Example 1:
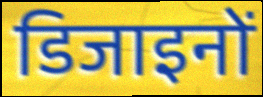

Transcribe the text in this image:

डिजाइनों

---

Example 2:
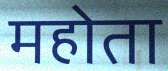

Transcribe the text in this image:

महोता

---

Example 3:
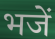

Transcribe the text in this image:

भजें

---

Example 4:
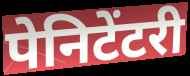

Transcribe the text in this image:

पेनिटेंटरी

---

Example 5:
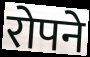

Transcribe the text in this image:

रोपने